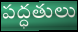
పద్ధతులు